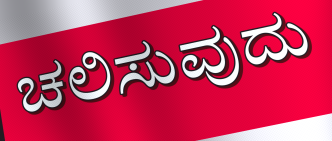
ಚಲಿಸುವುದು